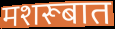
मशरूबात